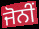
ਜੋਨੀਂ